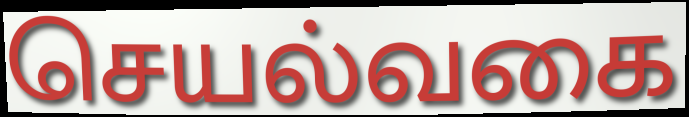
செயல்வகை